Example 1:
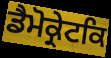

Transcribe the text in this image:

ਡੈਮੋਕ੍ਰੇਟਕਿ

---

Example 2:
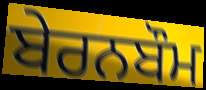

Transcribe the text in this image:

ਬੇਰਨਬੌਮ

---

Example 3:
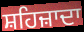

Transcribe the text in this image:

ਸ਼ਹਿਜ਼ਾਦਾ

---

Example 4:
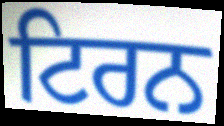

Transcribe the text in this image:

ਟਿਰਨ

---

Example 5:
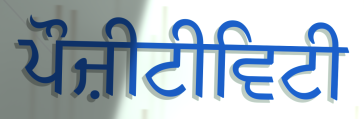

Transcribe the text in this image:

ਪੌਜ਼ੀਟੀਵਿਟੀ